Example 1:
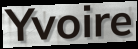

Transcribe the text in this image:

Yvoire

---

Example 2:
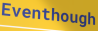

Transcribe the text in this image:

Eventhough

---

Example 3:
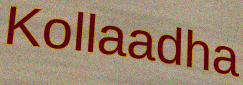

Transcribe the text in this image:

Kollaadha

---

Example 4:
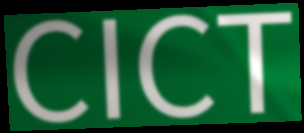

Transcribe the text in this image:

CICT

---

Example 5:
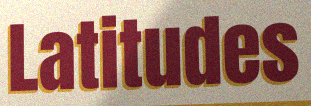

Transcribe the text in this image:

Latitudes